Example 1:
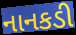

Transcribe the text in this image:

નાનકડી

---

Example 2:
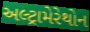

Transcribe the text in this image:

અલ્ટ્રામેરેથોન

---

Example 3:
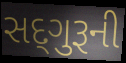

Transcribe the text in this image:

સદ્‌ગુરૂની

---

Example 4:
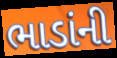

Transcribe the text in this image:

ભાડાંની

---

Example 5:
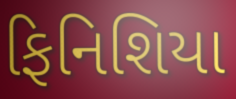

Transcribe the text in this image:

ફિનિશિયા